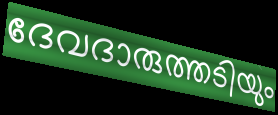
ദേവദാരുത്തടിയും